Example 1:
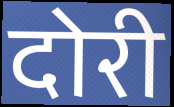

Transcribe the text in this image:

दोरी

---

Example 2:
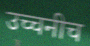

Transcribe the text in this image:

उच्चनीच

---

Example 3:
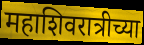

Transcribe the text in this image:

महाशिवरात्रीच्या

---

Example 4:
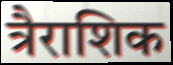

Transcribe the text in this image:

त्रैराशिक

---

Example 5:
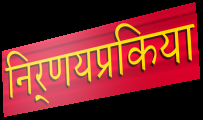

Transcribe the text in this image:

निर्णयप्रकिया